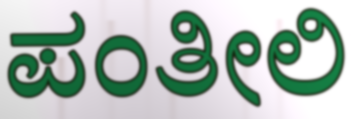
ಪಂತೀಲಿ